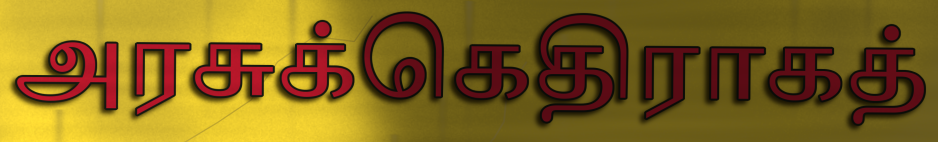
அரசுக்கெதிராகத்